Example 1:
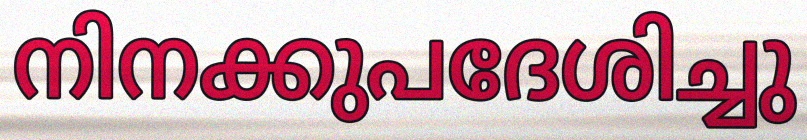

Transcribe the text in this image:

നിനക്കുപദേശിച്ചു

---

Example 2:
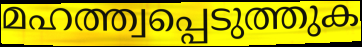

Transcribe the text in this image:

മഹത്ത്വപ്പെടുത്തുക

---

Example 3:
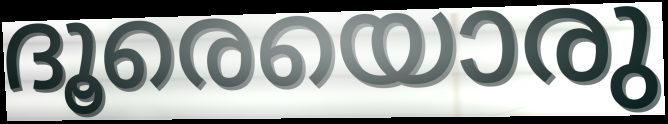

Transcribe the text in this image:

ദൂരെയൊരു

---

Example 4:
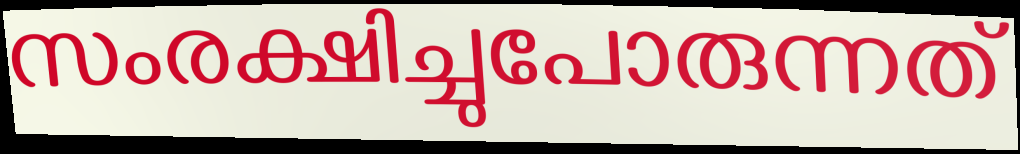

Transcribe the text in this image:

സംരക്ഷിച്ചുപോരുന്നത്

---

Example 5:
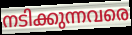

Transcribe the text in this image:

നടിക്കുന്നവരെ